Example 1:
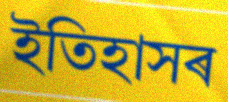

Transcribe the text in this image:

ইতিহাসৰ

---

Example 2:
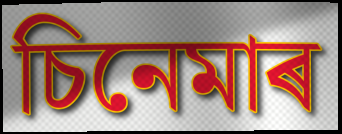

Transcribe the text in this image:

চিনেমাৰ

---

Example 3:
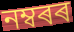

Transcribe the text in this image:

নম্বৰৰ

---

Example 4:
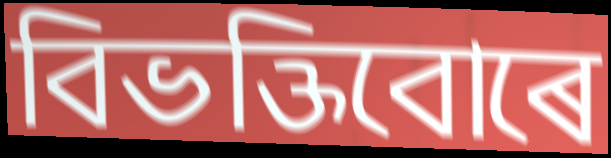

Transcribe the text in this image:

বিভক্তিবোৰে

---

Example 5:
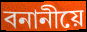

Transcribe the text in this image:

বনানীয়ে